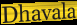
Dhavala